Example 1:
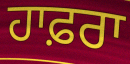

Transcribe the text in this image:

ਹਾਫ਼ਰਾ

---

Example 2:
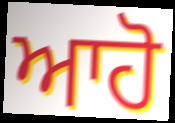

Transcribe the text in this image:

ਆਹੋ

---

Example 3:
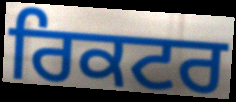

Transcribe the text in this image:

ਰਿਕਟਰ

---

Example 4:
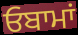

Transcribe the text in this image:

ਓਬਾਮਾਂ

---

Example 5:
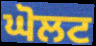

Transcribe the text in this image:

ਘੋਲਟ